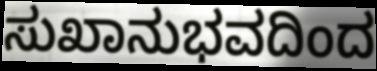
ಸುಖಾನುಭವದಿಂದ